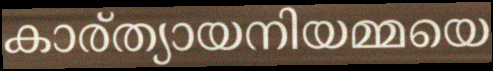
കാര്ത്യായനിയമ്മയെ